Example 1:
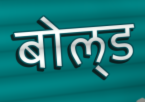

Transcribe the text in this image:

बोल्ड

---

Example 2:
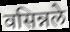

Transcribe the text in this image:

वसिन्नले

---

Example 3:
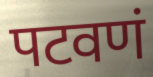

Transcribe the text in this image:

पटवणं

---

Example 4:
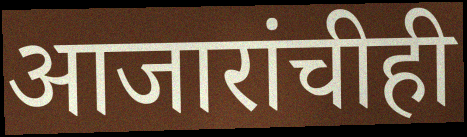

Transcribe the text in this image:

आजारांचीही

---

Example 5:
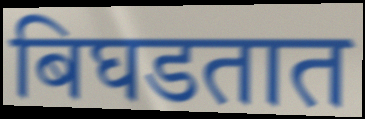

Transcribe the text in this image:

बिघडतात